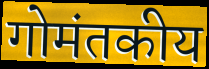
गोमंतकीय